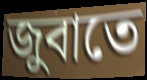
জুবাতে